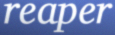
reaper